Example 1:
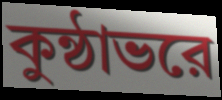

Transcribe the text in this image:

কুন্ঠাভরে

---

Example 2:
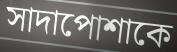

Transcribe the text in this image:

সাদাপোশাকে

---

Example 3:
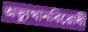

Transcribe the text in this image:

অভ্যুত্থানবিরোধী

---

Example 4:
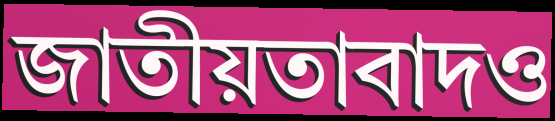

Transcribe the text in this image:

জাতীয়তাবাদও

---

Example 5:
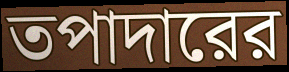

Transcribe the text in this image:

তপাদারের